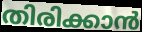
തിരിക്കാൻ